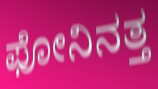
ಫೋನಿನತ್ತ